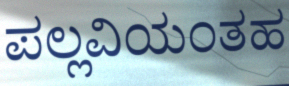
ಪಲ್ಲವಿಯಂತಹ